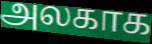
அலகாக